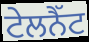
ਟੇਲਨੈੱਟ